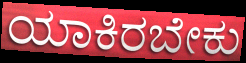
ಯಾಕಿರಬೇಕು